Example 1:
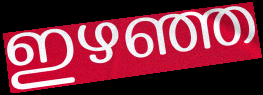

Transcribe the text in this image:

ഇഴഞ്ഞ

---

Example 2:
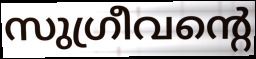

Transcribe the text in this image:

സുഗ്രീവന്റെ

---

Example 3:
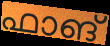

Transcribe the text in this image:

ഫാങ്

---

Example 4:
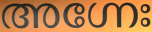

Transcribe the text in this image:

അഗ്നേഃ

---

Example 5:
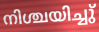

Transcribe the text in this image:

നിശ്ചയിച്ചു്